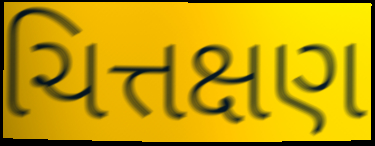
ચિત્તક્ષણ